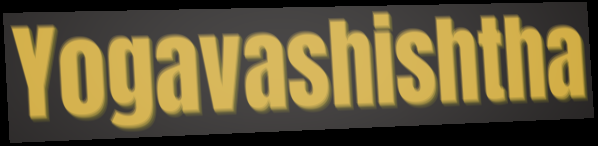
Yogavashishtha